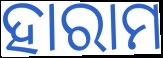
ହାରାମ